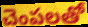
చెంపలతో